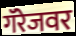
गॅरेजवर